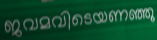
ജവമവിടെയണഞ്ഞു